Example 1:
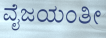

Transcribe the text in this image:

ವೈಜಯಂತೀ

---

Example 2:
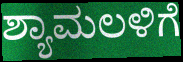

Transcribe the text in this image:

ಶ್ಯಾಮಲಳಿಗೆ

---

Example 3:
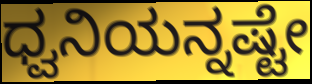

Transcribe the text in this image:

ಧ್ವನಿಯನ್ನಷ್ಟೇ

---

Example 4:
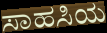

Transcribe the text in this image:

ಸಾಹಸಿಯ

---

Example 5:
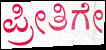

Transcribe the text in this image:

ಪ್ರೀತಿಗೇ